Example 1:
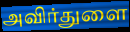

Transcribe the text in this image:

அவிர்துளை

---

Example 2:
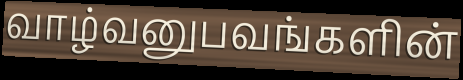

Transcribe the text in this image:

வாழ்வனுபவங்களின்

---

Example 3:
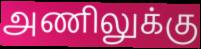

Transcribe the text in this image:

அணிலுக்கு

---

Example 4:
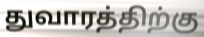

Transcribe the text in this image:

துவாரத்திற்கு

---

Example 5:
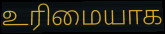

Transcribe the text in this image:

உரிமையாக